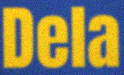
Dela